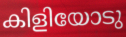
കിളിയോടു